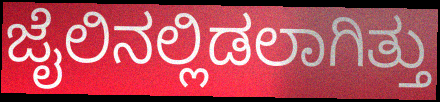
ಜೈಲಿನಲ್ಲಿಡಲಾಗಿತ್ತು